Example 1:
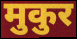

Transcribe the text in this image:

मुकुर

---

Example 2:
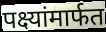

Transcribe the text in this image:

पक्ष्यांमार्फत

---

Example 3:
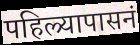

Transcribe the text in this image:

पहिल्यापासनं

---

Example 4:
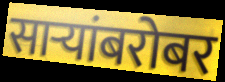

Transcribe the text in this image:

साऱ्यांबरोबर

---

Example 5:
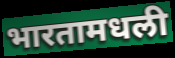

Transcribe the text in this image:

भारतामधली